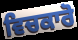
ਵਿਚਕਾਰੋ